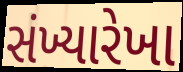
સંખ્યારેખા